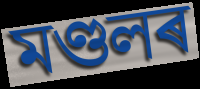
মণ্ডলৰ